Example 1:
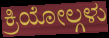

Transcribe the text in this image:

ಕ್ರಿಯೋಲ್ಗಳು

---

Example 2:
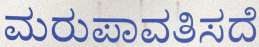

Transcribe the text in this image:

ಮರುಪಾವತಿಸದೆ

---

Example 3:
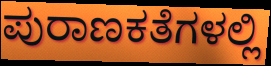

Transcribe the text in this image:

ಪುರಾಣಕತೆಗಳಲ್ಲಿ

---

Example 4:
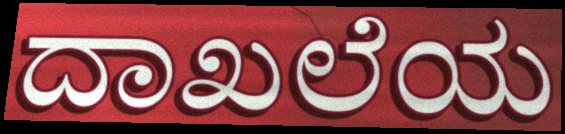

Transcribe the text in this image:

ದಾಖಲೆಯ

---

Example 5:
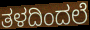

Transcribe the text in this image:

ತಳದಿಂದಲೆ